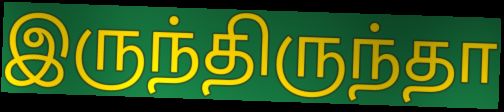
இருந்திருந்தா